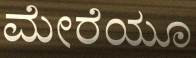
ಮೇರೆಯೂ